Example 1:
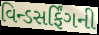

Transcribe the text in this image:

વિન્ડસર્ફિંગની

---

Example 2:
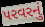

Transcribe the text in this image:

પરવરનું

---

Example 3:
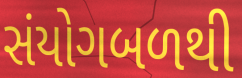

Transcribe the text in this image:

સંયોગબળથી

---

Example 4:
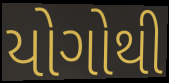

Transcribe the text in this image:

યોગોથી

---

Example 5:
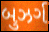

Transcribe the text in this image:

બુઝર્ગ